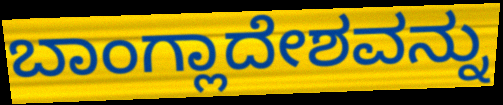
ಬಾಂಗ್ಲಾದೇಶವನ್ನು